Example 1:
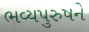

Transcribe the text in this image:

ભવ્યપુરુષને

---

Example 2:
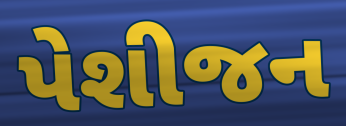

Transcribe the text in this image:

પેશીજન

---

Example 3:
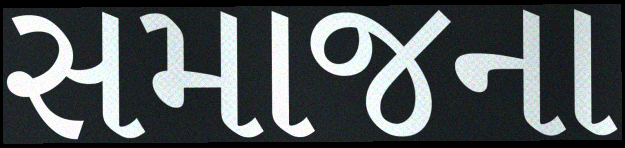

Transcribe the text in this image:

સમાજના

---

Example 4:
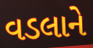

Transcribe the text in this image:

વડલાને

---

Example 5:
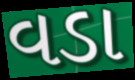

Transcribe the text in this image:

વડા